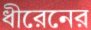
ধীরেনের